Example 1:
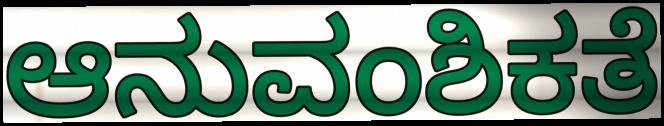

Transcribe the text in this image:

ಆನುವಂಶಿಕತೆ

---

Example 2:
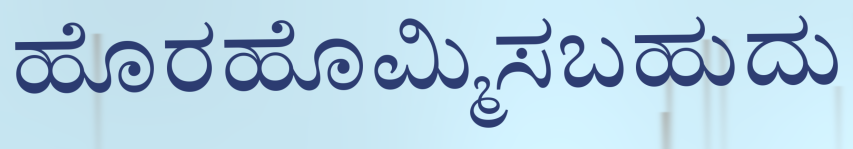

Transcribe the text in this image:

ಹೊರಹೊಮ್ಮಿಸಬಹುದು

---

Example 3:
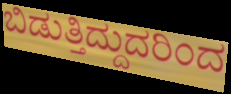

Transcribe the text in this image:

ಬಿಡುತ್ತಿದ್ದುದರಿಂದ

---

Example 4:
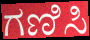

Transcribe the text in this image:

ಗಣಿಸಿ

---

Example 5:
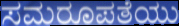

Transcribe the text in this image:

ಸಮರೂಪತೆಯು